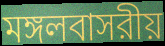
মঙ্গলবাসরীয়